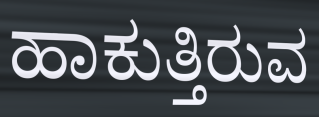
ಹಾಕುತ್ತಿರುವ